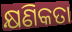
କ୍ଷଣିକତା